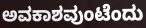
ಅವಕಾಶವುಂಟೆಂದು